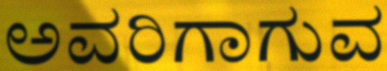
ಅವರಿಗಾಗುವ